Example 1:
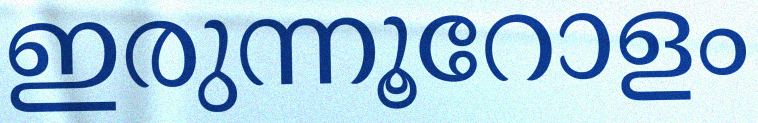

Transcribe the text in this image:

ഇരുന്നൂറോളം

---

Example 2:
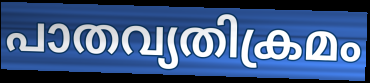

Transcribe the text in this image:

പാതവ്യതിക്രമം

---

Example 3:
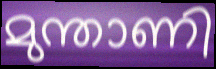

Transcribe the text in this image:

മുന്താണി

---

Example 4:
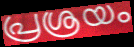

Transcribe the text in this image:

പ്രശ്രയം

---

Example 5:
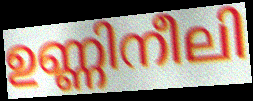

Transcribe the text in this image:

ഉണ്ണിനീലി